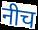
नीच